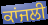
ਕਾਂਜਲੀ